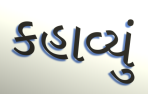
કહાવ્યું